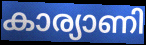
കാര്യാണി